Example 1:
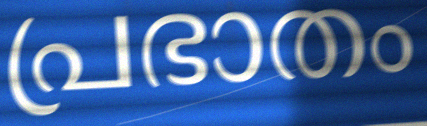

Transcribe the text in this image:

പ്രഭാതം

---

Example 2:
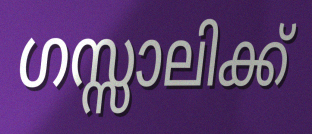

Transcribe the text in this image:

ഗസ്സാലിക്ക്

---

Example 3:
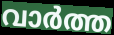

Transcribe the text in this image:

വാർത്ത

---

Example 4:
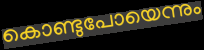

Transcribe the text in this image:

കൊണ്ടുപോയെന്നും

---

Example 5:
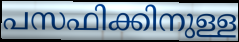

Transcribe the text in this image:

പസഫിക്കിനുള്ള